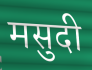
मसुदी